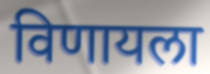
विणायला